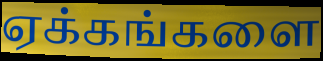
ஏக்கங்களை